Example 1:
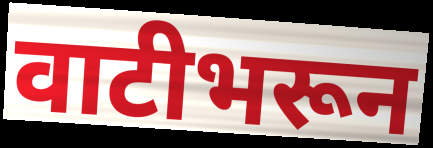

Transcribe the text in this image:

वाटीभरून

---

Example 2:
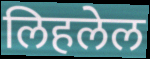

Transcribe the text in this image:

लिहलेल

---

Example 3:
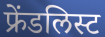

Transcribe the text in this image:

फ्रेंडलिस्ट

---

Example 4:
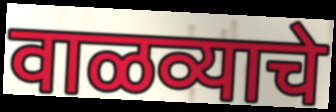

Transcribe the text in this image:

वाळव्याचे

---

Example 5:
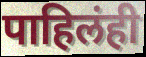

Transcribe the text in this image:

पाहिलंही